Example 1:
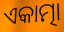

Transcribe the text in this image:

ଏକାତ୍ମା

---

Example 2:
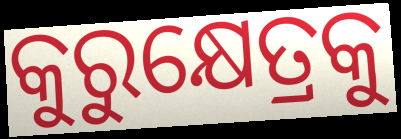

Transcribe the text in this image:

କୁରୁକ୍ଷେତ୍ରକୁ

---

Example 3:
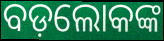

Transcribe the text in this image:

ବଡ଼ଲୋକଙ୍କ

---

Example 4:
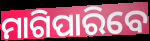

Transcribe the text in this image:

ମାଗିପାରିବେ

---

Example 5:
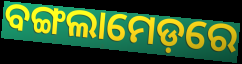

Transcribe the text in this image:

ବଙ୍ଗଲାମେଡ଼ରେ